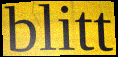
blitt